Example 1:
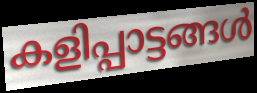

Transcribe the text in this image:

കളിപ്പാട്ടങ്ങൾ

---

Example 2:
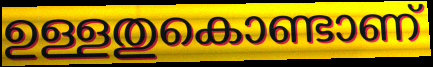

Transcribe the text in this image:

ഉള്ളതുകൊണ്ടാണ്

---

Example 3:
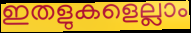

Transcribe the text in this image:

ഇതളുകളെല്ലാം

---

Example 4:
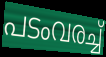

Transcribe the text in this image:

പടംവരച്ച്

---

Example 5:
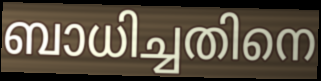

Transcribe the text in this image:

ബാധിച്ചതിനെ